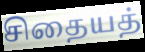
சிதையத்